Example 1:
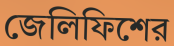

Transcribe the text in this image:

জেলিফিশের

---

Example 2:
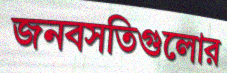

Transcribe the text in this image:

জনবসতিগুলোর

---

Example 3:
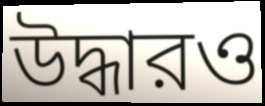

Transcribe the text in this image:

উদ্ধারও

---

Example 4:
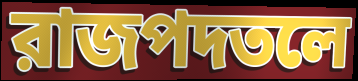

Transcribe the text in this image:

রাজপদতলে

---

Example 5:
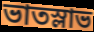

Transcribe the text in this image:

ভাতস্লাভ